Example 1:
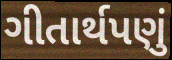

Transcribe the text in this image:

ગીતાર્થપણું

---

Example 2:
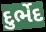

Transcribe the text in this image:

દુર્ભેદ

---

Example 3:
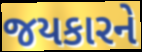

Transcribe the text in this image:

જયકારને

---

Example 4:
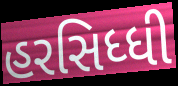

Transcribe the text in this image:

હરસિધ્ધી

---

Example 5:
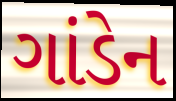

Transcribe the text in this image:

ગાંડેન